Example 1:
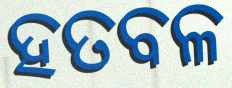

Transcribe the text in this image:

ହତବଳ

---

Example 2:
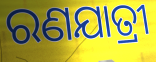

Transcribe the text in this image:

ରଣଯାତ୍ରୀ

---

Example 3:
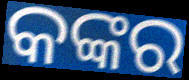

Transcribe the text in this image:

କଙ୍କର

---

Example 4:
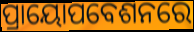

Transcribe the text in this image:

ପ୍ରାୟୋପବେଶନରେ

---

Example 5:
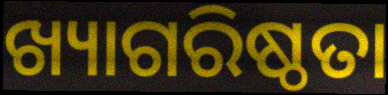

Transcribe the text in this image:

ଖ୍ୟାଗରିଷ୍ଠତା